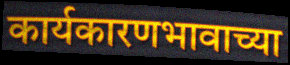
कार्यकारणभावाच्या